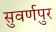
सुवर्णपुर